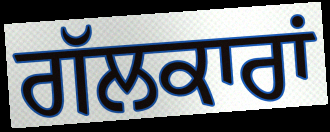
ਗੱਲਕਾਰਾਂ